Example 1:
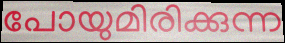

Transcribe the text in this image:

പോയുമിരിക്കുന്ന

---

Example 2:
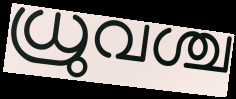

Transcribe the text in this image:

ധ്രുവശ്ച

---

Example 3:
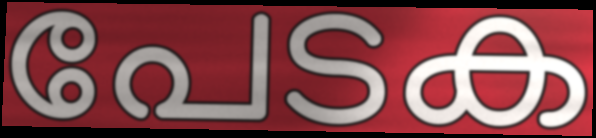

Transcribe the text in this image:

പേടക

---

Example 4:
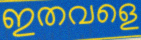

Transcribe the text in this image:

ഇതവളെ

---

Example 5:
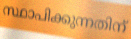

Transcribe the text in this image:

സ്ഥാപിക്കുന്നതിന്